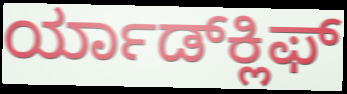
ರ್ಯಾಡ್‍ಕ್ಲಿಫ್